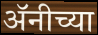
ॲनीच्या